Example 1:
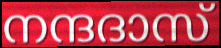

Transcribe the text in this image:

നന്ദദാസ്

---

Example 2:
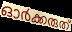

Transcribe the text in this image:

ഓർക്കരുത്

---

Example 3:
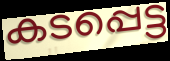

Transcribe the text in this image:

കടപ്പെട്ട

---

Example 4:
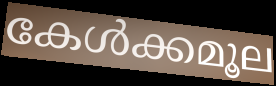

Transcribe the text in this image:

കേൾക്കമൂല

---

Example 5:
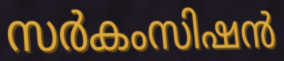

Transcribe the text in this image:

സർകംസിഷൻ